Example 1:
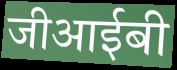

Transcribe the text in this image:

जीआईबी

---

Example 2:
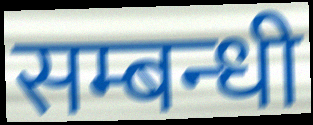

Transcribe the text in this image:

सम्‍बन्‍धी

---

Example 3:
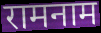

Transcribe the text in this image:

रामनाम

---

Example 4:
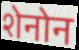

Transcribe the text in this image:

शेनोन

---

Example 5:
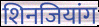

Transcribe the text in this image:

शिनजियांग